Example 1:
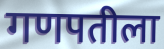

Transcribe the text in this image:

गणपतीला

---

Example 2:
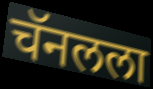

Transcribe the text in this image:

चॅनलला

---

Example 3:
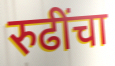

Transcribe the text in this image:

रुढींचा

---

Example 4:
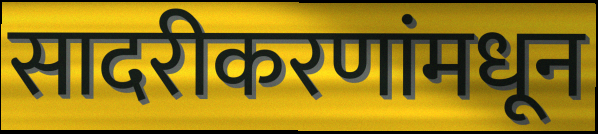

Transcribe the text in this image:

सादरीकरणांमधून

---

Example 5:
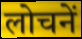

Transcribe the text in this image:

लोचनें